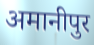
अमानीपुर